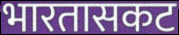
भारतासकट